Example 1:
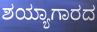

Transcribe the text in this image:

ಶಯ್ಯಾಗಾರದ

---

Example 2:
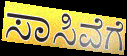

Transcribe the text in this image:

ಸಾಸಿವೆಗೆ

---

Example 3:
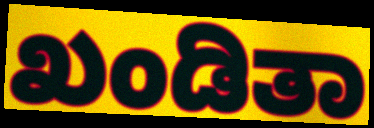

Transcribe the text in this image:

ಖಂಡಿತಾ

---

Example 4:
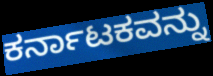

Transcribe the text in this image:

ಕರ್ನಾಟಕವನ್ನು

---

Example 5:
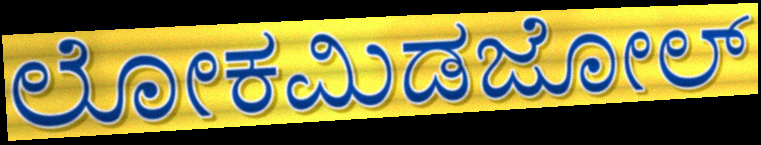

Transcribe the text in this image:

ಲೋಕಮಿಡಜೋಲ್